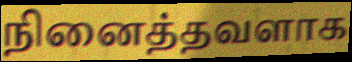
நினைத்தவளாக